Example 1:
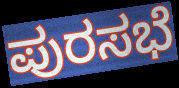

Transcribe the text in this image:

ಪುರಸಭೆ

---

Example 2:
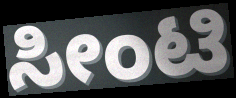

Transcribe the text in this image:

ಸೀಂಟಿ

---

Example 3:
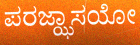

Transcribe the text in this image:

ಪರಜ್ಝಾಸಯೋ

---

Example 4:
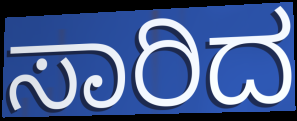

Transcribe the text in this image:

ಸಾರಿದ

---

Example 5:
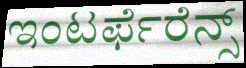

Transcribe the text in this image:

ಇಂಟರ್ಫೆರೆನ್ಸ್